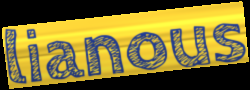
lianous